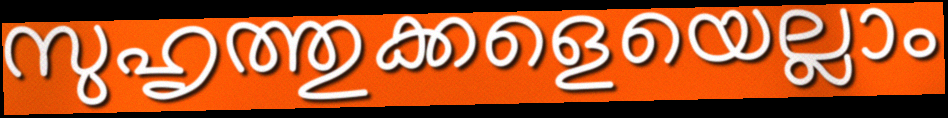
സുഹൃത്തുക്കളെയെല്ലാം